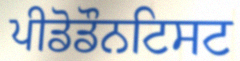
ਪੀਡੋਡੌਨਟਿਸਟ